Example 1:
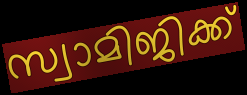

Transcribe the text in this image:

സ്വാമിജിക്ക്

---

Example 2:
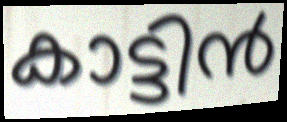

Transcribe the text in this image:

കാട്ടിൻ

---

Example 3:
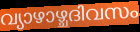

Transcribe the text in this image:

വ്യാഴാഴ്ചദിവസം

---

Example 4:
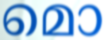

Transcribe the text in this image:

മൊ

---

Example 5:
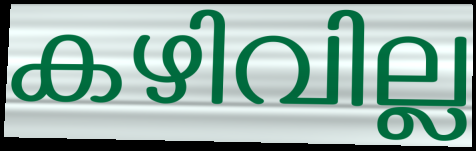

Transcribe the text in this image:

കഴിവില്ല